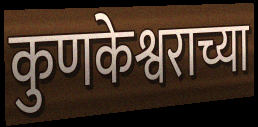
कुणकेश्वराच्या